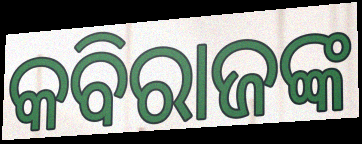
କବିରାଜଙ୍କ